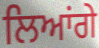
ਲਿਆਂਗੇ